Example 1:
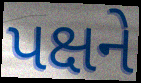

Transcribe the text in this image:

પક્ષને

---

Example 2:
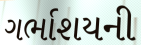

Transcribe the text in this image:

ગર્ભાશયની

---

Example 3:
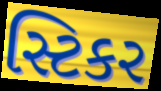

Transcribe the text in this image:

સ્ટિકર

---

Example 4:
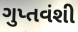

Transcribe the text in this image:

ગુપ્તવંશી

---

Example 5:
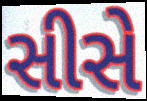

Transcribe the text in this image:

સીસે